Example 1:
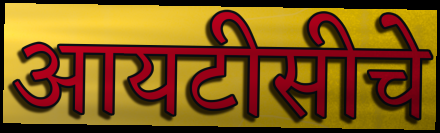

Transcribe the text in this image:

आयटीसीचे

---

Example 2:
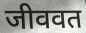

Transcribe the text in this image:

जीववत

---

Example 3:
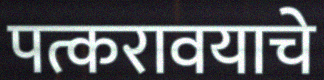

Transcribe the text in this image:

पत्करावयाचे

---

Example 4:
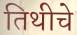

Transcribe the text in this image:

तिथीचे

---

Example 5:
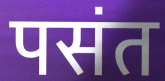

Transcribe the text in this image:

पसंत